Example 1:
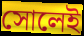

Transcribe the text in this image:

সোলেই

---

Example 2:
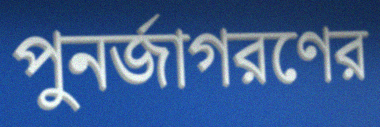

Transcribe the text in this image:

পুনর্জাগরণের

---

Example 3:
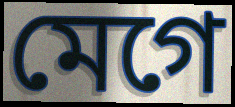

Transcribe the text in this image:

মেগে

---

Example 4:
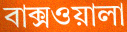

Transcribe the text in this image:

বাক্সওয়ালা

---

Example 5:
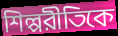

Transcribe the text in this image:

শিল্পরীতিকে